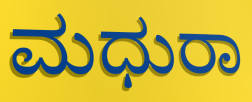
ಮಧುರಾ